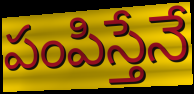
పంపిస్తేనే